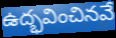
ఉద్భవించినవే